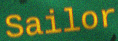
Sailor